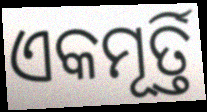
ଏକମୂର୍ତ୍ତି